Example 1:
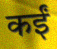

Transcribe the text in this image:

कईं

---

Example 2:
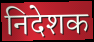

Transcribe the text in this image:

निदेशक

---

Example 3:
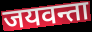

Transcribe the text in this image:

जयवन्ता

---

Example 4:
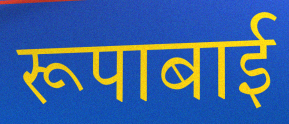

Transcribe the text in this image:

रूपाबाई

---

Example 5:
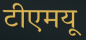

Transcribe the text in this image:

टीएमयू